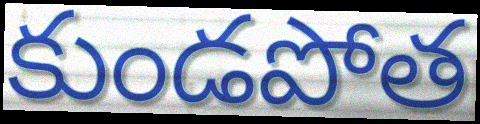
కుండపోత